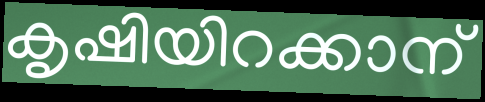
കൃഷിയിറക്കാന്